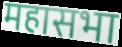
महासभा